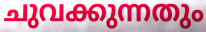
ചുവക്കുന്നതും